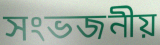
সংভজনীয়